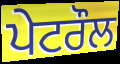
ਪੇਟਰੌਲ